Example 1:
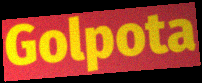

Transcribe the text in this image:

Golpota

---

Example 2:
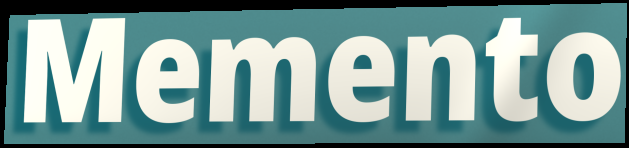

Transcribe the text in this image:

Memento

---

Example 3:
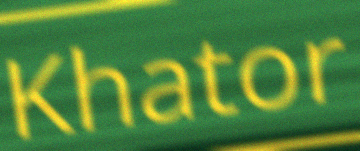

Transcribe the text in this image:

Khator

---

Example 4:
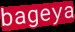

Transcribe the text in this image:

bageya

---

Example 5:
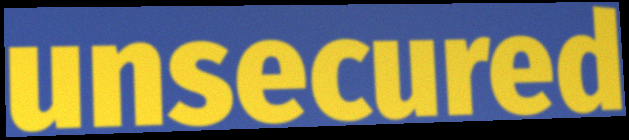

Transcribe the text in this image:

unsecured